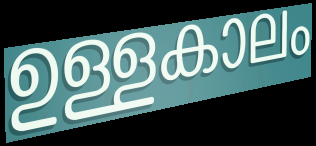
ഉള്ളകാലം